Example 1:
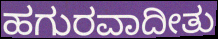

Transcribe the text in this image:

ಹಗುರವಾದೀತು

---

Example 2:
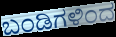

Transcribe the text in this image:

ಬಂಡಿಗಳಿಂದ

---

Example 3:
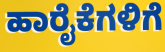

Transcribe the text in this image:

ಹಾರೈಕೆಗಳಿಗೆ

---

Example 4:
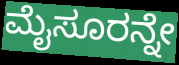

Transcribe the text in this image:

ಮೈಸೂರನ್ನೇ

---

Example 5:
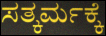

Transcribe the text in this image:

ಸತ್ಕರ್ಮಕ್ಕೆ